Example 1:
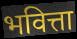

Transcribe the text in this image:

भवित्ता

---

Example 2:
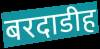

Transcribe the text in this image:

बरदाडीह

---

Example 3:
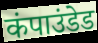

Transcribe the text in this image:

कंपाउंडेड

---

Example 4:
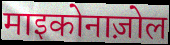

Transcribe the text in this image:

माइकोनाज़ोल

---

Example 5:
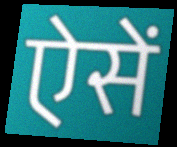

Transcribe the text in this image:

ऐसें